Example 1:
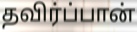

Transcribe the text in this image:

தவிர்ப்பான்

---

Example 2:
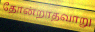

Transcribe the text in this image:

தோன்றாதவாறு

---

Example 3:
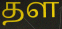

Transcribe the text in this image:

தள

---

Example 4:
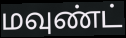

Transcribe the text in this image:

மவுண்ட்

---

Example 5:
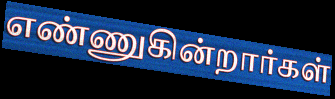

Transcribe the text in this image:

எண்ணுகின்றார்கள்